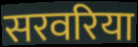
सरवरिया